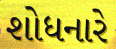
શોધનારે